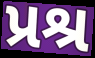
પ્રશ્ર